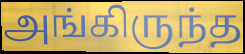
அங்கிருந்த